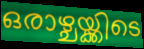
ഒരാഴ്ചയ്ക്കിടെ